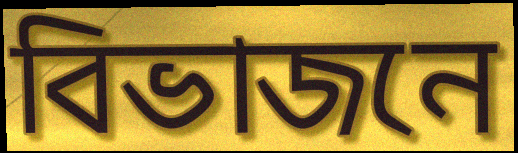
বিভাজনে